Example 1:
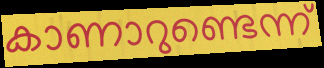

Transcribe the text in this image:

കാണാറുണ്ടെന്ന്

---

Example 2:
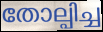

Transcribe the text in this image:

തോല്പിച്ച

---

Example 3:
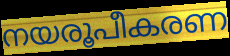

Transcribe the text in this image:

നയരൂപീകരണ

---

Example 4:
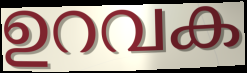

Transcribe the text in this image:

ഉറവക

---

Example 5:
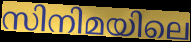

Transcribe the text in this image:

സിനിമയിലെ